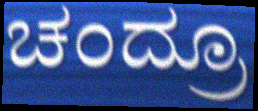
ಚಂದ್ರೂ